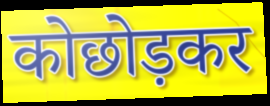
कोछोड़कर